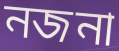
নজনা